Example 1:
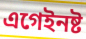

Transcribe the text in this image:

এগেইনষ্ট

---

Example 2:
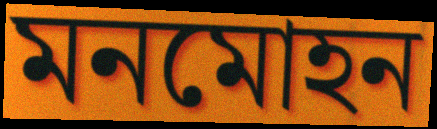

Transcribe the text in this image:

মনমোহন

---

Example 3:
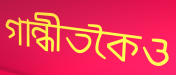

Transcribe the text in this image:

গান্ধীতকৈও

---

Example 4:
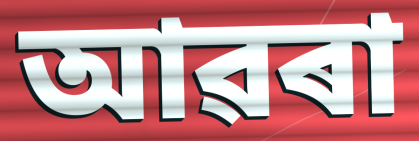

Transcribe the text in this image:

আৱৰা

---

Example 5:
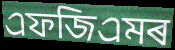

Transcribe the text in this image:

এফজিএমৰ